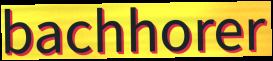
bachhorer